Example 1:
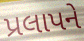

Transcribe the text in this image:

પ્રલાપને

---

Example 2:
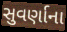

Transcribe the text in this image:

સુવર્ણાના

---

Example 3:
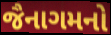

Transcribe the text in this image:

જૈનાગમનો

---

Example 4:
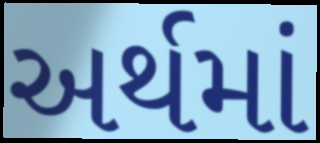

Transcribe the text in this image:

અર્થમાં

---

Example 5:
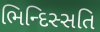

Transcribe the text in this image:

ભિન્દિસ્સતિ